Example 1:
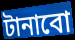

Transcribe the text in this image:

টানাবো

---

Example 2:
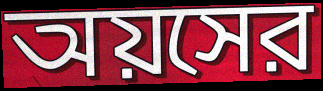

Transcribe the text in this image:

অয়সের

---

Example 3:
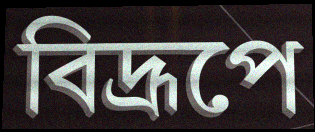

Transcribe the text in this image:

বিদ্রূপে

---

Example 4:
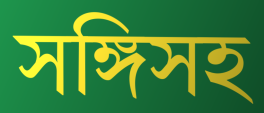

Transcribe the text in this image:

সঙ্গিসহ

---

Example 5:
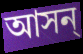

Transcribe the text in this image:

আসন্